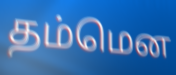
தம்மென